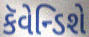
કૅવેન્ડિશે